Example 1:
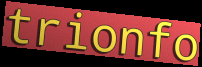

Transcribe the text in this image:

trionfo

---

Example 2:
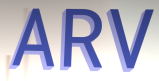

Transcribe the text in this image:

ARV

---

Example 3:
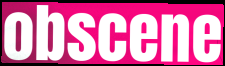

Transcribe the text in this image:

obscene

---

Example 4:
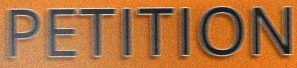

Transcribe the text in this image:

PETITION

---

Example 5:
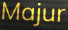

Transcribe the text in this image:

Majur